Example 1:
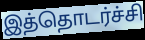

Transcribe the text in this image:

இத்தொடர்ச்சி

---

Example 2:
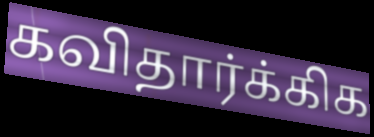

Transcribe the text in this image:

கவிதார்க்கிக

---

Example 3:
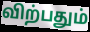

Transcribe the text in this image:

விற்பதும்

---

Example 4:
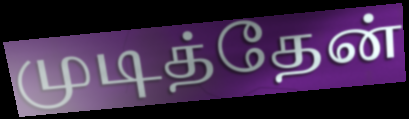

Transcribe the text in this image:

முடித்தேன்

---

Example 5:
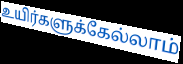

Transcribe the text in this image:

உயிர்களுக்கேல்லாம்